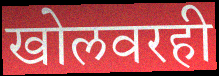
खोलवरही